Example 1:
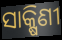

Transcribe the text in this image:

ସାକ୍ଷିଣୀ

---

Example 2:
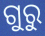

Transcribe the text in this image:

ଗୁରୁ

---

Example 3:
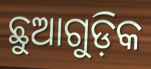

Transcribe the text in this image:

ଛୁଆଗୁଡ଼ିକ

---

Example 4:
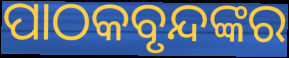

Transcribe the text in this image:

ପାଠକବୃନ୍ଦଙ୍କର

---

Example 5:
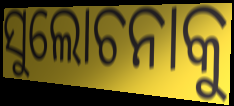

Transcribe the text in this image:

ସୁଲୋଚନାକୁ